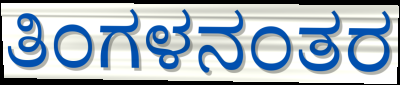
ತಿಂಗಳನಂತರ